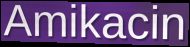
Amikacin